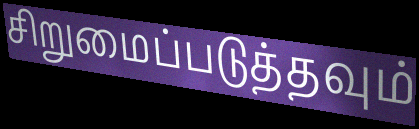
சிறுமைப்படுத்தவும்